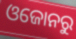
ଓଜୋନରୁ